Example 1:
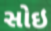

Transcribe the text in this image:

સોઇ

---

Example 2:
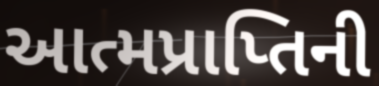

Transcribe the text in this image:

આત્મપ્રાપ્તિની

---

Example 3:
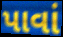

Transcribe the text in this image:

પાવાં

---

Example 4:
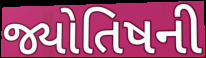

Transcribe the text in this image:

જ્યોતિષની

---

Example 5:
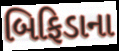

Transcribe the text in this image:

બિફિડાના